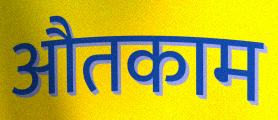
औतकाम